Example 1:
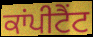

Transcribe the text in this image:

ਕਾਂਪੀਟੈਂਟ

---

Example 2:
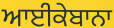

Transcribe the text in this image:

ਆਈਕੇਬਾਨਾ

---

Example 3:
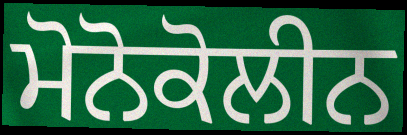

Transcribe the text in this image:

ਮੋਨੋਕੋਲੀਨ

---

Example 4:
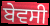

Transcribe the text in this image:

ਬੇਵਸੀ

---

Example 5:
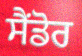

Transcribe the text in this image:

ਸੈਂਡੋਰ